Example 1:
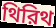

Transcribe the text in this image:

থিরিথ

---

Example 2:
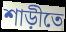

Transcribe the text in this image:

শাড়ীতে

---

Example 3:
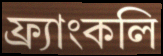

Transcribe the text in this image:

ফ্র্যাংকলি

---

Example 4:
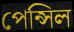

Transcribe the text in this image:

পেন্সিল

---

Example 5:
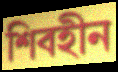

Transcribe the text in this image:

শিবহীন